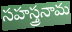
సహస్త్రనామ